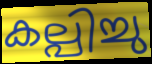
കല്പിച്ചു